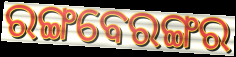
ରଙ୍ଗବେରଙ୍ଗର